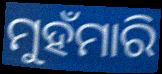
ମୁହଁମାରି